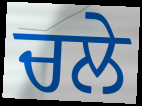
ਚਲੇ